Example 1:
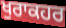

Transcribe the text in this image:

ਖੁਰਾਕਹਰ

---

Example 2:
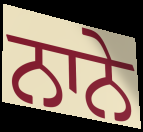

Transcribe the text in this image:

ਨਾਨੇ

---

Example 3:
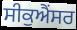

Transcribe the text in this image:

ਸੀਕੁਐਂਸਰ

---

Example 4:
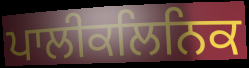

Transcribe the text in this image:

ਪਾਲੀਕਲਿਨਿਕ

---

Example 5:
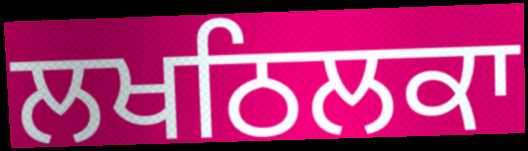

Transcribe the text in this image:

ਲਖਠਿਲਕਾ